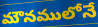
మౌనములోనే